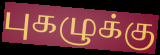
புகழுக்கு